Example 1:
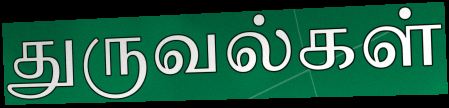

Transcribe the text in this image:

துருவல்கள்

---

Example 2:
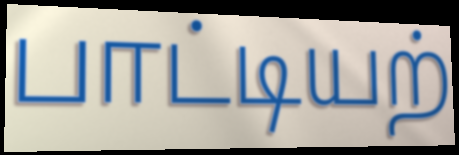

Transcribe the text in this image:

பாட்டியற்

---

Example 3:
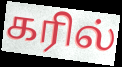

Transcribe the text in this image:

கரில்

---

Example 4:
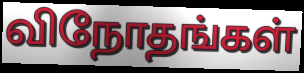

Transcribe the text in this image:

விநோதங்கள்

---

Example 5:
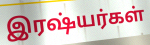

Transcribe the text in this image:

இரஷ்யர்கள்